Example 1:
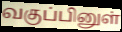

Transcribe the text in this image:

வகுப்பினுள்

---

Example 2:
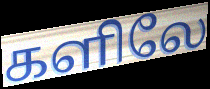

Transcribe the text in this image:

களிலே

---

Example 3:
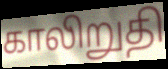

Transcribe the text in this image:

காலிறுதி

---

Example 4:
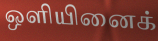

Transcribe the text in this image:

ஒளியினைக்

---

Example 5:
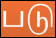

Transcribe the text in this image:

படு